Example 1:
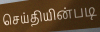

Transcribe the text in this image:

செய்தியின்படி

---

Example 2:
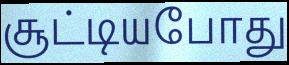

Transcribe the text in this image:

சூட்டியபோது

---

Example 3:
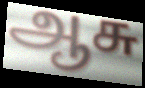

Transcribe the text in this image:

ஆசு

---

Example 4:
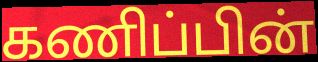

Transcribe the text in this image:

கணிப்பின்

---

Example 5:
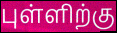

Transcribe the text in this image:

புள்ளிற்கு